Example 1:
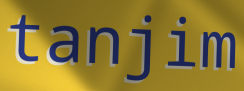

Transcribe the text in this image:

tanjim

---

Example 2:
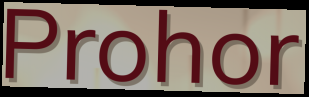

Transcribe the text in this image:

Prohor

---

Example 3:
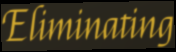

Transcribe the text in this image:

Eliminating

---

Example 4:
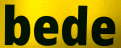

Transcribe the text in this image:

bede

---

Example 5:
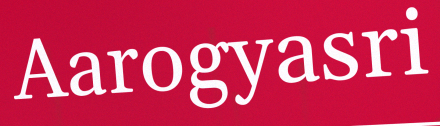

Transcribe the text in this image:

Aarogyasri